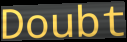
Doubt